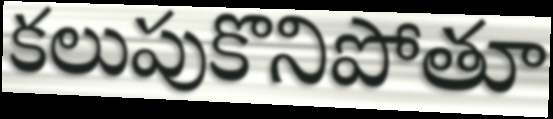
కలుపుకొనిపోతూ